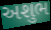
અશુભ